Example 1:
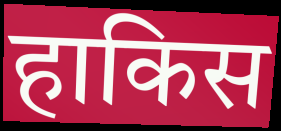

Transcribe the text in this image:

हाकिस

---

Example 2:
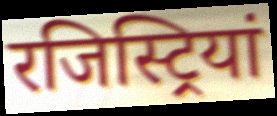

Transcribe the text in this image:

रजिस्ट्रियां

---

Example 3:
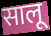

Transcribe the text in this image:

सालू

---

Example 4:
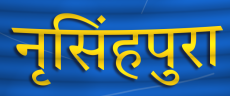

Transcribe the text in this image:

नृसिंहपुरा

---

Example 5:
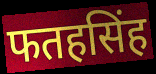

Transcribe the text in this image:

फतहसिंह